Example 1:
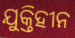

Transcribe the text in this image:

ଯୁକ୍ତିହୀନ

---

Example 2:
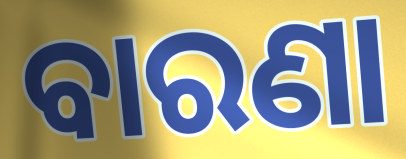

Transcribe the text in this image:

ବାରଣା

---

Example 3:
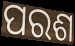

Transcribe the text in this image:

ପରଶ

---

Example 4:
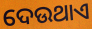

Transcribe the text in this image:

ଦେଉଥାଏ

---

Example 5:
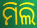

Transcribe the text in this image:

ମିଲି